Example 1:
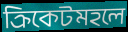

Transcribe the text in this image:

ক্রিকেটমহলে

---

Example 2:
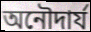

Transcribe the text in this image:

অনৌদার্য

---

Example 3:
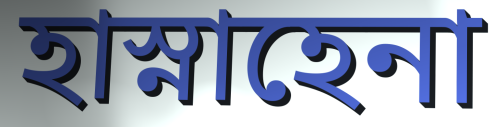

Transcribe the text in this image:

হাস্নাহেনা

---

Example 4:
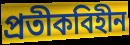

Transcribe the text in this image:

প্রতীকবিহীন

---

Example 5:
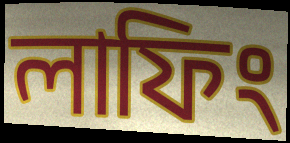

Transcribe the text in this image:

লাফিং